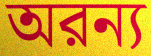
অরন্য